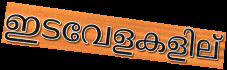
ഇടവേളകളില്